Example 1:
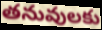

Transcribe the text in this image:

తనువులకు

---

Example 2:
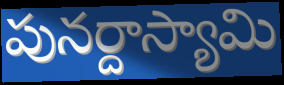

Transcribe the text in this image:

పునర్దాస్యామి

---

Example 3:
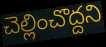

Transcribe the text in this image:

చెల్లించొద్దని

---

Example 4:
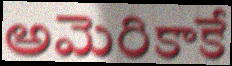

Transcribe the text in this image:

అమెరికాకే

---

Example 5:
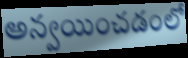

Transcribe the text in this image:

అన్వయించడంలో